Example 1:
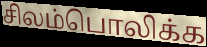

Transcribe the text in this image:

சிலம்பொலிக்க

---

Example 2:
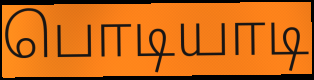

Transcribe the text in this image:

பொடியாடி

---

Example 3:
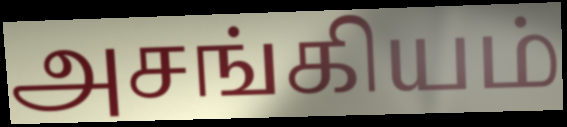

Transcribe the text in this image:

அசங்கியம்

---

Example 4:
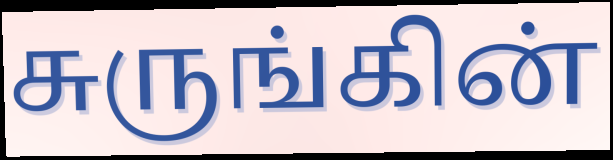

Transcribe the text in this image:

சுருங்கின்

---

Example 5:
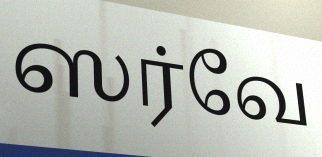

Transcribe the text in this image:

ஸர்வே